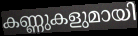
കണ്ണുകളുമായി